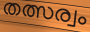
തത്സര്വം